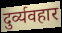
दुर्व्यवहार